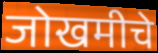
जोखमीचे